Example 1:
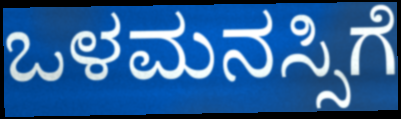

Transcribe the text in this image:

ಒಳಮನಸ್ಸಿಗೆ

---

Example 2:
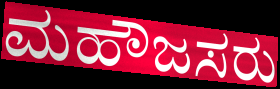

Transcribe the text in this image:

ಮಹೌಜಸರು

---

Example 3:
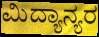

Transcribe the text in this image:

ಮಿದ್ಯಾನ್ಯರ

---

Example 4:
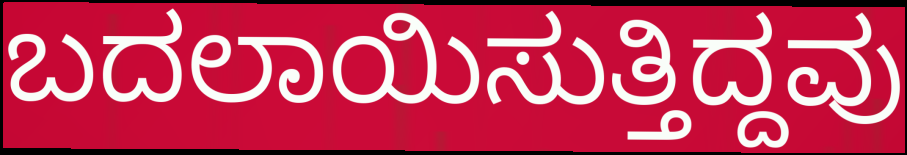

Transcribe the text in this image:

ಬದಲಾಯಿಸುತ್ತಿದ್ದವು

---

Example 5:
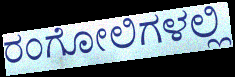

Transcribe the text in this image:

ರಂಗೋಲಿಗಳಲ್ಲಿ